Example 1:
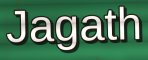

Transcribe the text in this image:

Jagath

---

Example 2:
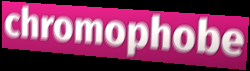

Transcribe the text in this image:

chromophobe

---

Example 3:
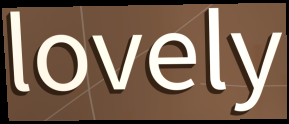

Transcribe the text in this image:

lovely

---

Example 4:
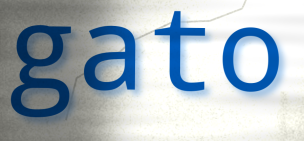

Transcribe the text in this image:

gato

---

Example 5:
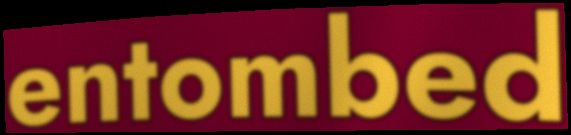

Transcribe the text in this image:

entombed